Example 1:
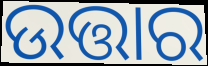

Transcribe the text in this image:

ଉତ୍ତାର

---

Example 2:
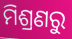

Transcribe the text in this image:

ମିଶ୍ରଣରୁ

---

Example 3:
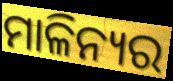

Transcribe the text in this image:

ମାଳିନ୍ୟର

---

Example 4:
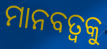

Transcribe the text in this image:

ମାନବତ୍ବକୁ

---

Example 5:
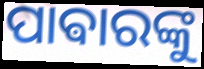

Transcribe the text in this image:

ପାଵାରଙ୍କୁ